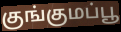
குங்குமப்பூ